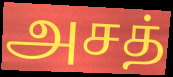
அசத்